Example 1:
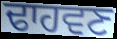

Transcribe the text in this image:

ਢਾਹਵਣ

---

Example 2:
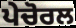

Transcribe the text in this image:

ਪੇਚੋਰਲ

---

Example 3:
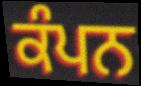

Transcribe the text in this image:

ਕੰਪਨ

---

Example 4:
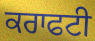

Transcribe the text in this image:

ਕਰਾਫਟੀ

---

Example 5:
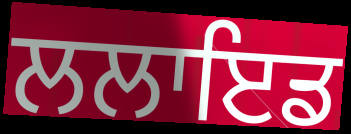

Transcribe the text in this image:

ਲਲਾਇਡ